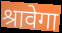
श्रावेगा